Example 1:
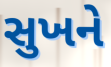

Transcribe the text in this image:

સુખને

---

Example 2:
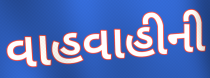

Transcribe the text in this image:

વાહવાહીની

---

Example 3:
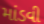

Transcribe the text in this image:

માંડવી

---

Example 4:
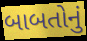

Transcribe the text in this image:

બાબતોનું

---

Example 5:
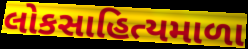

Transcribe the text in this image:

લોકસાહિત્યમાળા